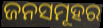
ଜନସମୂହର